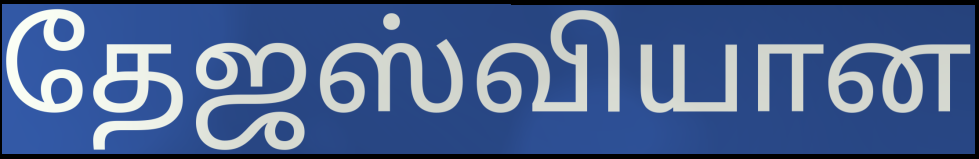
தேஜஸ்வியான